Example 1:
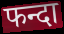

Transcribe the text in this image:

फन्दा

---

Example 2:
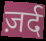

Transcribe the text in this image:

ज़र्द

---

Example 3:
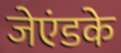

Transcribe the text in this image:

जेएंडके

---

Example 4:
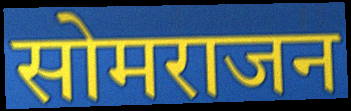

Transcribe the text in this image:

सोमराजन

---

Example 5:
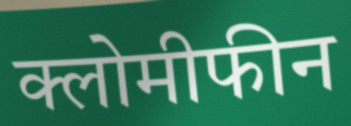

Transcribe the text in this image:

क्लोमीफीन